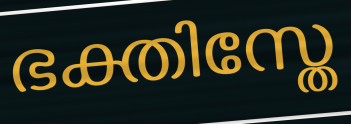
ഭക്തിസ്തേ